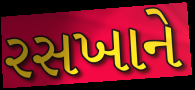
રસખાને